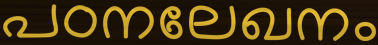
പഠനലേഖനം